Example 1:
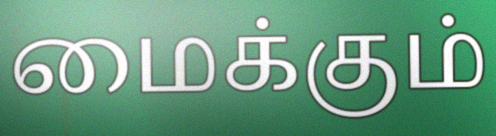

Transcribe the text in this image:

மைக்கும்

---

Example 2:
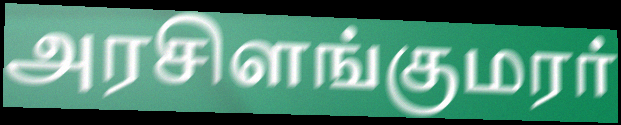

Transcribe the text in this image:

அரசிளங்குமரர்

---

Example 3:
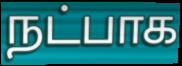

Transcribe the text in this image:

நட்பாக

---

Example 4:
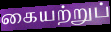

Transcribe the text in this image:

கையற்றுப்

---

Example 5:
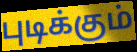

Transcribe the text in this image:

புடிக்கும்